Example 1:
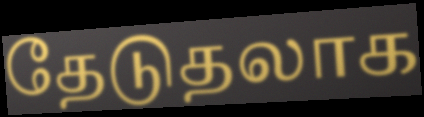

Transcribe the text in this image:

தேடுதலாக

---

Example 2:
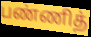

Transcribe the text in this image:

பண்ணித்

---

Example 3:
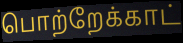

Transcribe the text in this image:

பொற்றேக்காட்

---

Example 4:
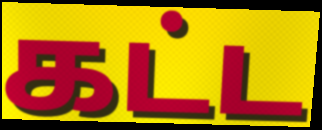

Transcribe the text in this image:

கட்ட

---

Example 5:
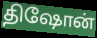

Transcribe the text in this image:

திஷோன்